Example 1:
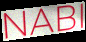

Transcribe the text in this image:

NABI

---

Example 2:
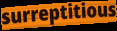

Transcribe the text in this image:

surreptitious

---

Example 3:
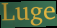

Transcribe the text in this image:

Luge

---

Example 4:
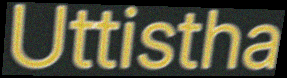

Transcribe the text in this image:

Uttistha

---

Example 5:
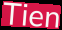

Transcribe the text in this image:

Tien